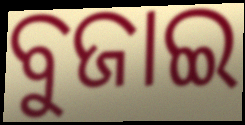
ବୁଜାଇ